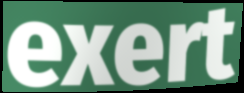
exert